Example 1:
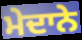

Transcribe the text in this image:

ਮੇਦਾਨੇ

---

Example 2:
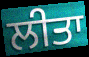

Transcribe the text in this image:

ਲੀਤਾ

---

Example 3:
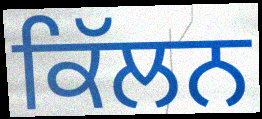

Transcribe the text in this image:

ਕਿੱਲਨ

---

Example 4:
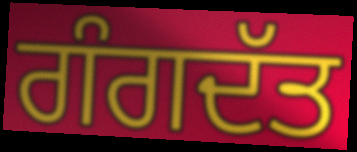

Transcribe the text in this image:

ਗੰਗਦੱਤ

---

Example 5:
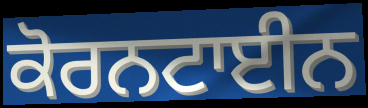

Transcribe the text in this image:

ਕੋਰਨਟਾਈਨ